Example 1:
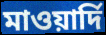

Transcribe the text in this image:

মাওয়ার্দি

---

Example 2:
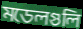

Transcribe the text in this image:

মডেলগুলি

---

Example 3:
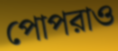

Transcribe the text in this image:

পোপরাও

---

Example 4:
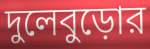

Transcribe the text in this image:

দুলেবুড়োর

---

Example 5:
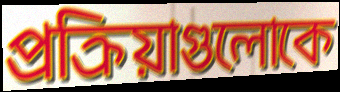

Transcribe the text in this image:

প্রক্রিয়াগুলোকে